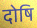
दोषि